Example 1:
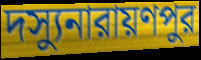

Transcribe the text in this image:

দস্যুনারায়ণপুর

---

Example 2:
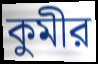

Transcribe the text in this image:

কুমীর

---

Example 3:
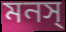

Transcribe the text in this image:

মনস্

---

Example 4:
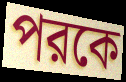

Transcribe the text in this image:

পরকে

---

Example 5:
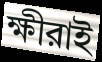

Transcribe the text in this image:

ক্ষীরাই